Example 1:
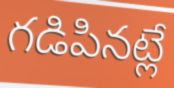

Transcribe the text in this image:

గడిపినట్లే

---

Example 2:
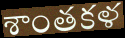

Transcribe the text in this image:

శాంతకళ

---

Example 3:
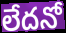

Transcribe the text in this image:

లేదనో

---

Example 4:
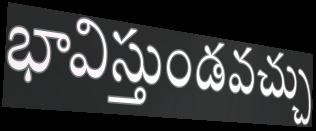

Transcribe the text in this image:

భావిస్తుండవచ్చు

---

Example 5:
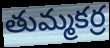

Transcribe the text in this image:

తుమ్మకర్ర